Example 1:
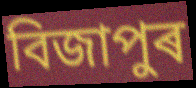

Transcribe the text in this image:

বিজাপুৰ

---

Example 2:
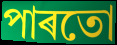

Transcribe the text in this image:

পাৰতো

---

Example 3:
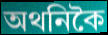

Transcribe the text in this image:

অথনিকৈ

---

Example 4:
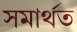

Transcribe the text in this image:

সমাৰ্থত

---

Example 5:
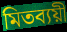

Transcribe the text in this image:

মিতব্যয়ী